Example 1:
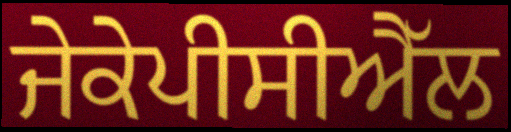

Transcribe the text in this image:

ਜੇਕੇਪੀਸੀਐੱਲ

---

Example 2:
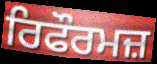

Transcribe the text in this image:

ਰਿਫੌਰਮਜ਼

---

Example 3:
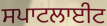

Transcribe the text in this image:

ਸਪਾਟਲਾਈਟ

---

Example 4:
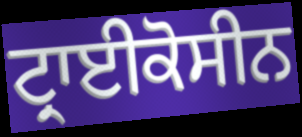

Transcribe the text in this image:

ਟ੍ਰਾਈਕੋਸੀਨ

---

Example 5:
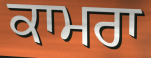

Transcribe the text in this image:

ਕਾਮਰਾ